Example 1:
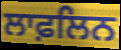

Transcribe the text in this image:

ਲਾਫ਼ਲਿਨ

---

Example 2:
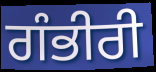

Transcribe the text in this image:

ਗੰਭੀਰੀ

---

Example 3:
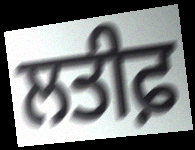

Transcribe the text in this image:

ਲਤੀਫ਼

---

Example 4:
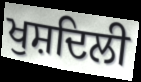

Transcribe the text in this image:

ਖੁਸ਼ਦਿਲੀ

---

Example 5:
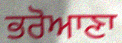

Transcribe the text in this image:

ਭਰੋਆਣਾ